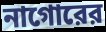
নাগোরের